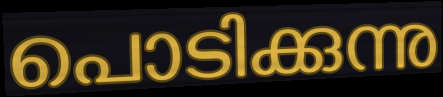
പൊടിക്കുന്നു